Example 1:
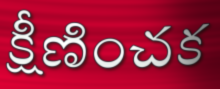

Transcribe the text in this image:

క్షీణించక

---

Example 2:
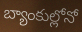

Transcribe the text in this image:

బ్యాంకుల్లోనో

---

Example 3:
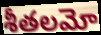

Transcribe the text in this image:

శీతలమో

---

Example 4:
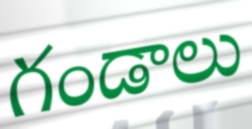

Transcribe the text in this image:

గండాలు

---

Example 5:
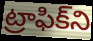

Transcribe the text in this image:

ట్రాఫిక్‌ని